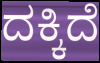
ದಕ್ಕಿದೆ